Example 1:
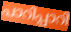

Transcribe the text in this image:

പാറിപ്പാറി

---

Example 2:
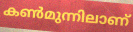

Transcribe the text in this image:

കൺമുന്നിലാണ്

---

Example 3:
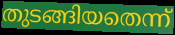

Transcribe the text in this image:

തുടങ്ങിയതെന്ന്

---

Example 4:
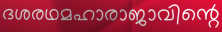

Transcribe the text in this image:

ദശരഥമഹാരാജാവിന്റെ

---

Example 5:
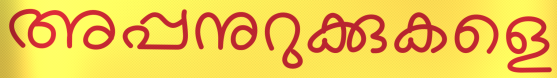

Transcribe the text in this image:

അപ്പനുറുക്കുകളെ